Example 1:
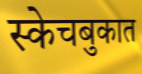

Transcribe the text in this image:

स्केचबुकात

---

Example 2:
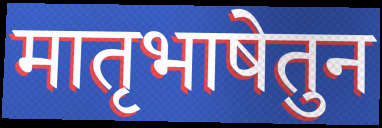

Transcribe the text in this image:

मातृभाषेतुन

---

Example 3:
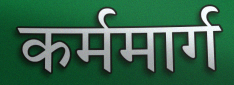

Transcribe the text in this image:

कर्ममार्ग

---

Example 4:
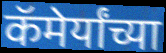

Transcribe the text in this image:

कॅमेर्यांच्या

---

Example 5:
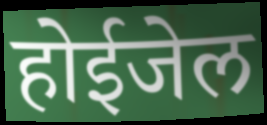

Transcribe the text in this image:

होईजेल